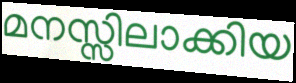
മനസ്സിലാക്കിയ